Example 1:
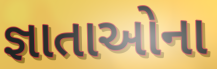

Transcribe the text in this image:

જ્ઞાતાઓના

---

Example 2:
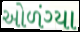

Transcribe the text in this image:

ઓળંગ્યા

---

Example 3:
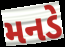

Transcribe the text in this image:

મનડે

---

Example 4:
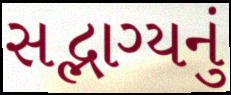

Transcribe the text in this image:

સદ્ભાગ્યનું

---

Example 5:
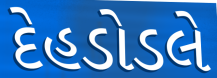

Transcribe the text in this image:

દેહડોડલે